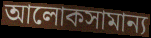
আলোকসামান্য